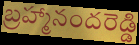
బ్రహ్మానందరెడ్డి